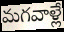
మగవాళ్లే